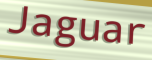
Jaguar